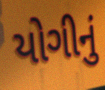
યોગીનું